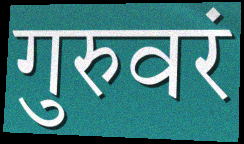
गुरुवरं